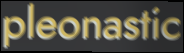
pleonastic